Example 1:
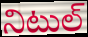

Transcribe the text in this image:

నిటుల్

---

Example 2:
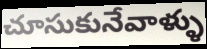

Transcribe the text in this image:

చూసుకునేవాళ్ళు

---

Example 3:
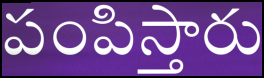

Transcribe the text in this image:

పంపిస్తారు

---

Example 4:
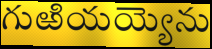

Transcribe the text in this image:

గుఱియయ్యెను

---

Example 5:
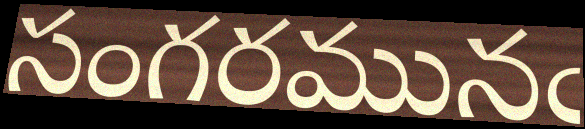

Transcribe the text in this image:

సంగరమునఁ